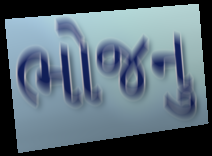
ભોજનુ